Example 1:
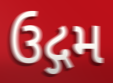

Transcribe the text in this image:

ઉદ્ગમ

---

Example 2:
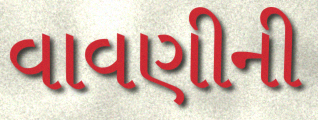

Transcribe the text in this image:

વાવણીની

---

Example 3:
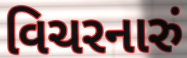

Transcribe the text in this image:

વિચરનારું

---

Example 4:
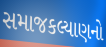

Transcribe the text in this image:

સમાજકલ્યાણનો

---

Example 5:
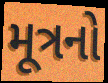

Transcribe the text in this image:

મૂત્રનો